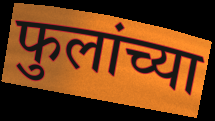
फुलांच्या